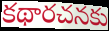
కథారచనకు